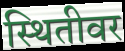
स्थितीवर